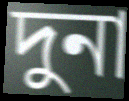
দুনা